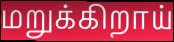
மறுக்கிறாய்